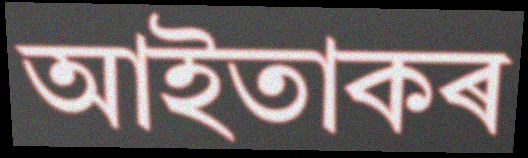
আইতাকৰ